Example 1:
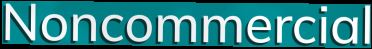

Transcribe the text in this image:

Noncommercial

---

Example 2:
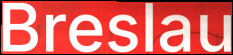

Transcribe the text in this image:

Breslau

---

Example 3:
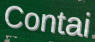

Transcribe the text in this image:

Contai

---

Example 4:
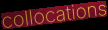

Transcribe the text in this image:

collocations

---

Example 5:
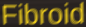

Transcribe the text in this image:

Fibroid